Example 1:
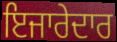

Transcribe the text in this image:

ਇਜਾਰੇਦਾਰ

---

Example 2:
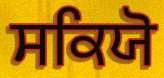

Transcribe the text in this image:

ਸਕਿਯੋ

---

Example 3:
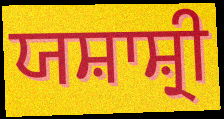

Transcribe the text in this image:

ਯਸ਼ਾਸ਼੍ਰੀ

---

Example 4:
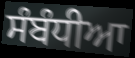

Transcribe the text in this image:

ਸੰਬੰਧੀਆ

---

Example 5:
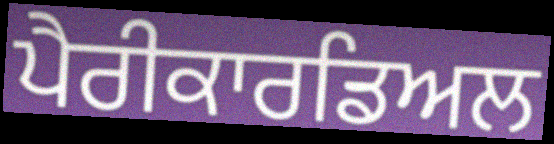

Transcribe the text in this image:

ਪੈਰੀਕਾਰਡਿਅਲ